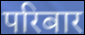
परिबार